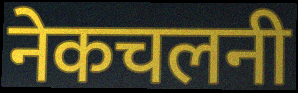
नेकचलनी